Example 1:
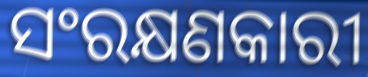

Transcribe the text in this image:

ସଂରକ୍ଷଣକାରୀ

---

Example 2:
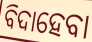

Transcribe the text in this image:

ବିଦାହେବା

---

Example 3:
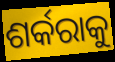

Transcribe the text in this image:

ଶର୍କରାକୁ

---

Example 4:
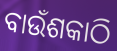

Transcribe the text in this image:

ବାଉଁଶକାଠି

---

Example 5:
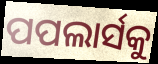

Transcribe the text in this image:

ପପଲାର୍ସକୁ